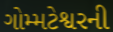
ગોમ્મટેશ્વરની